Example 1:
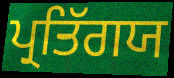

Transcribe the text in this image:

ਪ੍ਰਤਿੱਗਯ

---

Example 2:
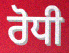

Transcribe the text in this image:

ਰੋਧੀ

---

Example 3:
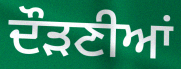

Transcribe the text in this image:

ਦੌੜਣੀਆਂ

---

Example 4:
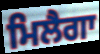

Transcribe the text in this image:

ਮਿਲੈਗਾ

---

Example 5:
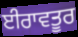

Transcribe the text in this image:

ਈਰਾਵਤੂਰ